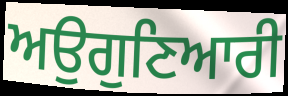
ਅਉਗੁਣਿਆਰੀ